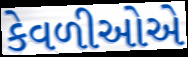
કેવળીઓએ